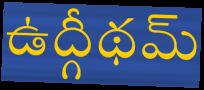
ఉద్గీథమ్